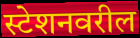
स्टेशनवरील